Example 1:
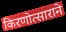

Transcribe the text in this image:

किरणोत्साराने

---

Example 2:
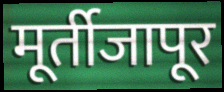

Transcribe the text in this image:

मूर्तीजापूर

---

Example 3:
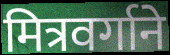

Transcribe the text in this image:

मित्रवर्गाने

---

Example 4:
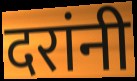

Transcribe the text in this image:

दरांनी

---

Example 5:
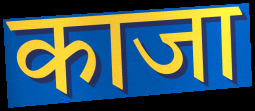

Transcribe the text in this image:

काजा